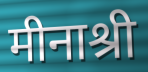
मीनाश्री